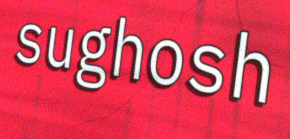
sughosh